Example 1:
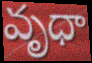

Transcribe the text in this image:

వృధా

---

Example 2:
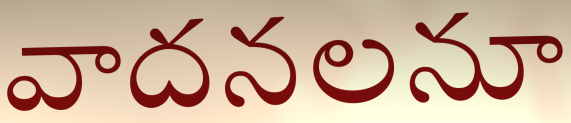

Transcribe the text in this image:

వాదనలనూ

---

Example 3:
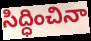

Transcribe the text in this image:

సిద్ధించినా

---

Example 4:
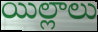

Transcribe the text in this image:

యిల్లాలు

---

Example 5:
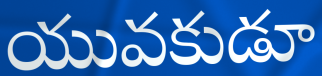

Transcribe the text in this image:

యువకుడూ